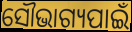
ସୌଭାଗ୍ୟପାଇଁ